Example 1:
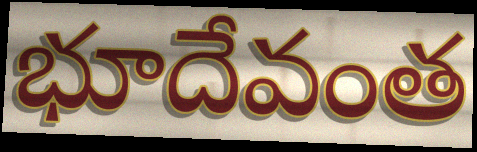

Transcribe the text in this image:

భూదేవంత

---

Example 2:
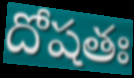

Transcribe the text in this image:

దోషతః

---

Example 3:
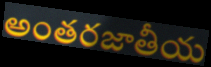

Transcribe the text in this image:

అంతరజాతీయ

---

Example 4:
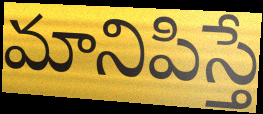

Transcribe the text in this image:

మానిపిస్తే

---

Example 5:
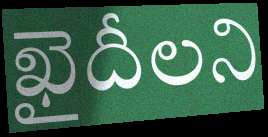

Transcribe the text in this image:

ఖైదీలని